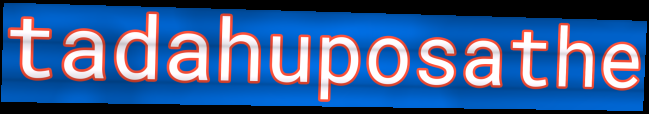
tadahuposathe